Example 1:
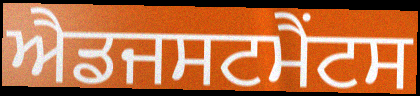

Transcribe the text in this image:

ਐਡਜਸਟਮੈਂਟਸ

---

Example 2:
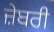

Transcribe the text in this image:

ਜ਼ੇਬਰੀ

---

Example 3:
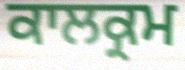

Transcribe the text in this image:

ਕਾਲਕ੍ਰਮ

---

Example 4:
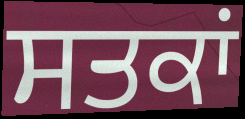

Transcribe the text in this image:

ਸਤਕਾਂ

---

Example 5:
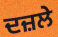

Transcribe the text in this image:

ਦਜ਼ਲੇ